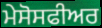
ਮੇਸੋਸਫੀਅਰ